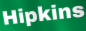
Hipkins